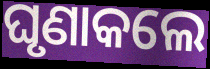
ଘୃଣାକଲେ